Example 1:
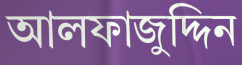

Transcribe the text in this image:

আলফাজুদ্দিন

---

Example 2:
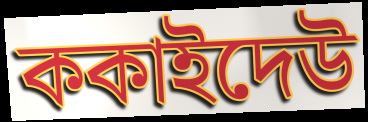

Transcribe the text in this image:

ককাইদেউ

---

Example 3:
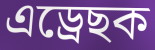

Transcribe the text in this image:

এড্ৰেছক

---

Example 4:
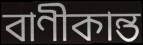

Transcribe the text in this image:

বাণীকান্ত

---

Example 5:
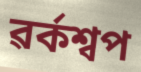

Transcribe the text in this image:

ৱৰ্কশ্বপ